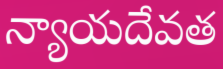
న్యాయదేవత